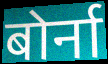
बोर्ना